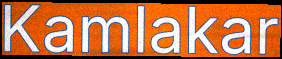
Kamlakar